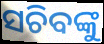
ସଚିବଙ୍କୁ